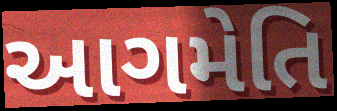
આગમેતિ